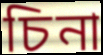
চিনা